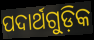
ପଦାର୍ଥଗୁଡ଼ିକ